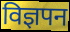
विज्ञपन